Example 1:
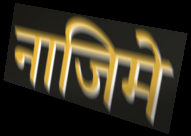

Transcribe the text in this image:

नाजिमे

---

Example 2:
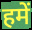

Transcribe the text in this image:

हमें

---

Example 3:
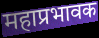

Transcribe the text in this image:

महाप्रभावक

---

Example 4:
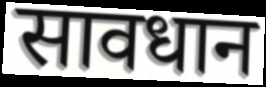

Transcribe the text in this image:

सावधान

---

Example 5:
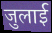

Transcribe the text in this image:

जुलाई